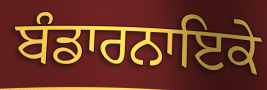
ਬੰਡਾਰਨਾਇਕੇ